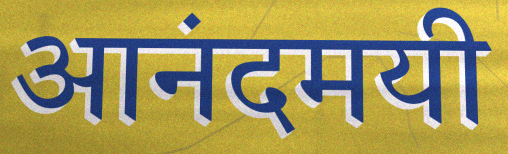
आनंदमयी